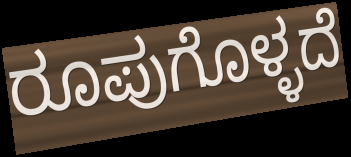
ರೂಪುಗೊಳ್ಳದೆ